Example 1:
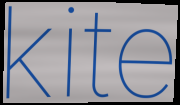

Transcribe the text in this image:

kite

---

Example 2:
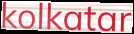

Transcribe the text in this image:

kolkatar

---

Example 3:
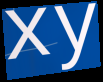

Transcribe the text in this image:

xy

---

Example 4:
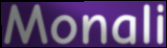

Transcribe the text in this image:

Monali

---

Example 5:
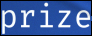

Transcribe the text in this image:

prize